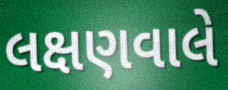
લક્ષણવાલે